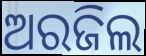
ଅରଜିଲ